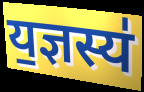
य॒ज्ञस्य॑